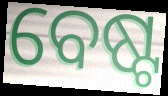
ବେଷ୍ଟ